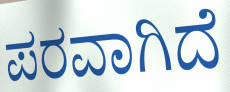
ಪರವಾಗಿದೆ